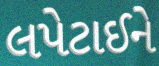
લપેટાઈને